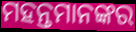
ମହନ୍ତମାନଙ୍କର